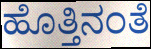
ಹೊತ್ತಿನಂತೆ